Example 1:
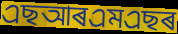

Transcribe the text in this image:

এছআৰএমএছৰ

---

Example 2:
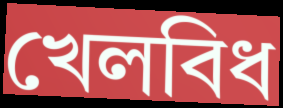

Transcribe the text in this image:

খেলবিধ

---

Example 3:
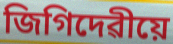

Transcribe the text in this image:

জিগিদেৱীয়ে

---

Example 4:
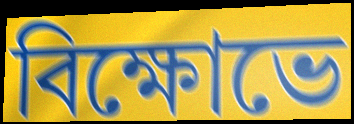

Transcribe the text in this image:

বিক্ষোভে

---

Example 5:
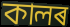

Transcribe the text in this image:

কালৰ